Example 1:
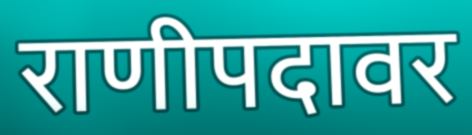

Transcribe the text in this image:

राणीपदावर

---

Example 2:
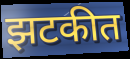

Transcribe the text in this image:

झटकीत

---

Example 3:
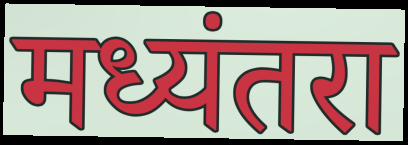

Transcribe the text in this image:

मध्यंतरा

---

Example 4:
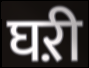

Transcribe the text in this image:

घऱी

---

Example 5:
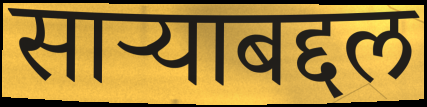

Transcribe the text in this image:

साऱ्याबद्दल